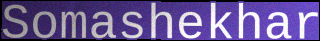
Somashekhar